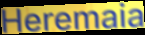
Heremaia